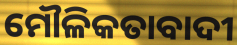
ମୌଳିକତାବାଦୀ